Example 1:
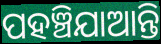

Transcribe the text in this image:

ପହଞ୍ଚିଯାଆନ୍ତି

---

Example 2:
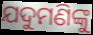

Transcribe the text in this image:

ଯଦୁମଣିଙ୍କୁ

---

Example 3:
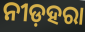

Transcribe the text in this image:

ନୀଡ଼ହରା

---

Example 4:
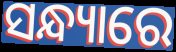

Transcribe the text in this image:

ସନ୍ଧ୍ୟାରେ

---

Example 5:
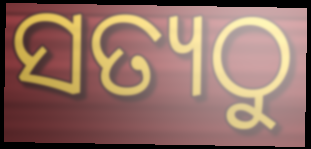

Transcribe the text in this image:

ସତ୍ୟଠୁ